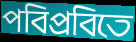
পবিপ্রবিতে